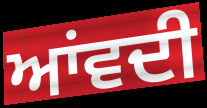
ਆਂਵਦੀ